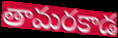
తామరకాడ